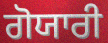
ਗੋਯਾਰੀ